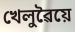
খেলুৱৈয়ে